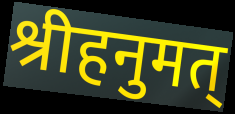
श्रीहनुमत्